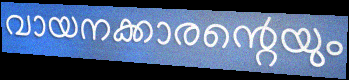
വായനക്കാരന്റെയും